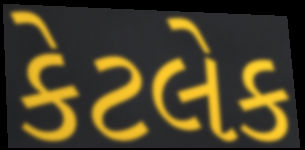
કેટલેક